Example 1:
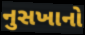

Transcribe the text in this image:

નુસખાનો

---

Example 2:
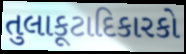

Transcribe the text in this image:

તુલાકૂટાદિકારકો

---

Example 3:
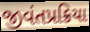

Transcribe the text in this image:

જીવંતપ્રક્રિયા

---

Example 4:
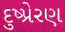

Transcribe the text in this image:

દુષ્પ્રેરણ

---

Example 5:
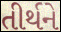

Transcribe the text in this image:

તીર્થને